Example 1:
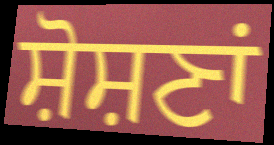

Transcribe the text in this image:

ਸ਼ੋਸ਼ਣਾਂ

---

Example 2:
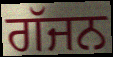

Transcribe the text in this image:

ਗੱਜਨ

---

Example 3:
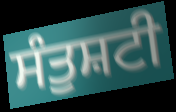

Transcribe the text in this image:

ਸੰਤੁਸ਼ਟੀ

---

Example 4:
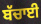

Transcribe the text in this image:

ਬੱਚਾਈ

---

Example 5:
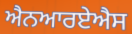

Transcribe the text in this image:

ਐਨਆਰਏਐਸ